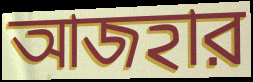
আজহার